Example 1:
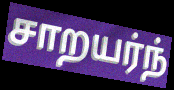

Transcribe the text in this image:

சாறயர்ந்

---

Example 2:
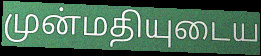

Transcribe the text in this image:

முன்மதியுடைய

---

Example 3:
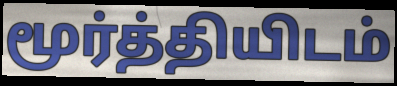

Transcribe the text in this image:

மூர்த்தியிடம்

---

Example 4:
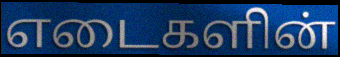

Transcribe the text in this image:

எடைகளின்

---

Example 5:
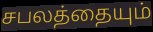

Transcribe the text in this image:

சபலத்தையும்